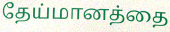
தேய்மானத்தை